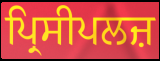
ਪ੍ਰਿਸੀਪਲਜ਼